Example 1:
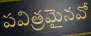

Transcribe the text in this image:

పవిత్రమైనవో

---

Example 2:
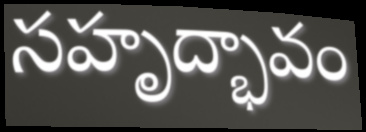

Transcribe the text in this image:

సహృద్భావం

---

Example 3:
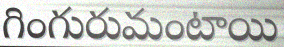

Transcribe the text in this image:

గింగురుమంటాయి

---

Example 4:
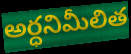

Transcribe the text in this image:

అర్ధనిమీలిత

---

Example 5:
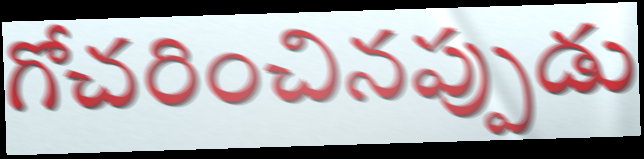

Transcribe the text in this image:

గోచరించినప్పుడు